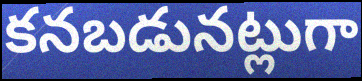
కనబడునట్లుగా